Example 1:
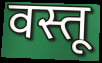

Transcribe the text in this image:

वस्तू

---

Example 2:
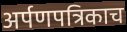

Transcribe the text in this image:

अर्पणपत्रिकाच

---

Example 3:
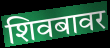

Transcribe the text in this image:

शिवबावर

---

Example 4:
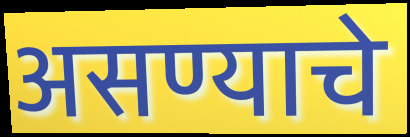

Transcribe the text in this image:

असण्याचे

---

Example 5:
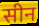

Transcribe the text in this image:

सीन